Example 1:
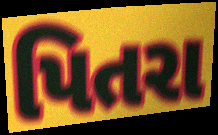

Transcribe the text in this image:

પિતરા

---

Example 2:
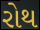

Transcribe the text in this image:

રોથ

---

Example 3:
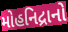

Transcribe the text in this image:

મોહનિદ્રાનો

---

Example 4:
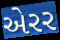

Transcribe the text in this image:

એરર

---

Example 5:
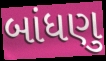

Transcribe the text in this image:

બાંધણુ